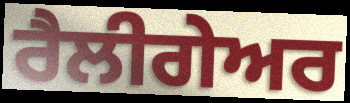
ਰੈਲੀਗੇਅਰ